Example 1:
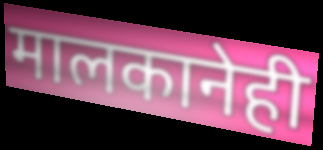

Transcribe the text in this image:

मालकानेही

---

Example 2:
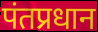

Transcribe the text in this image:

पंतप्रधान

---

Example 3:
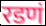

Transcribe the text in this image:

रडणं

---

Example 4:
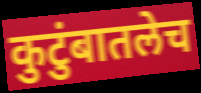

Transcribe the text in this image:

कुटुंबातलेच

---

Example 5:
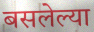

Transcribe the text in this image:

बसलेल्या